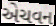
એચવન